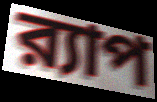
র‍্যাপ